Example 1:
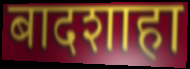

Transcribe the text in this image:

बादशाहा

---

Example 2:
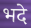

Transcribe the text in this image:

भदे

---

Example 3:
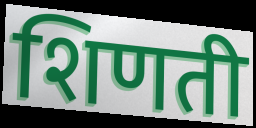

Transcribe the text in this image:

शिणती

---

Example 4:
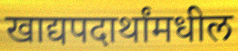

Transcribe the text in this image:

खाद्यपदार्थांमधील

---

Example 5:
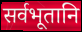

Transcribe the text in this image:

सर्वभूतानि